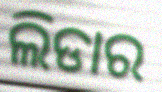
ଲିଡାର